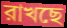
রাখছে